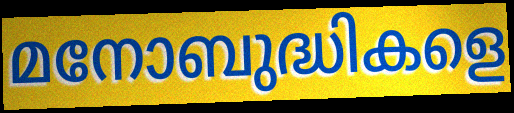
മനോബുദ്ധികളെ